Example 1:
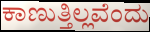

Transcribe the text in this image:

ಕಾಣುತ್ತಿಲ್ಲವೆಂದು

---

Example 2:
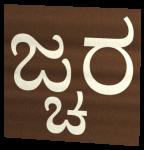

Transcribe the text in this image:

ಜ್ಚರ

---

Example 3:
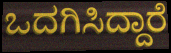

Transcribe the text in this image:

ಒದಗಿಸಿದ್ದಾರೆ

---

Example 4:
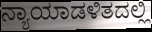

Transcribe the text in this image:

ನ್ಯಾಯಾಡಳಿತದಲ್ಲಿ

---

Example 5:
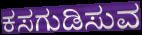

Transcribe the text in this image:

ಕಸಗುಡಿಸುವ